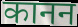
कानन